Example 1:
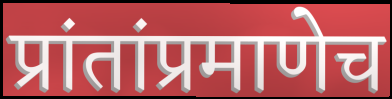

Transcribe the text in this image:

प्रांतांप्रमाणेच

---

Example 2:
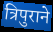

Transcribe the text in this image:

त्रिपुराने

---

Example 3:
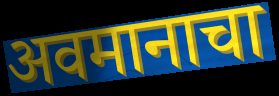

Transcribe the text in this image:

अवमानाचा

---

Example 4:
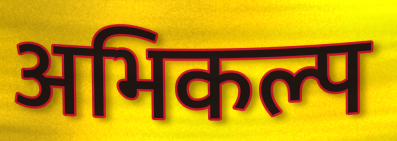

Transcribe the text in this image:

अभिकल्प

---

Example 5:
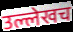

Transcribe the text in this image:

उल्लेखच